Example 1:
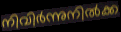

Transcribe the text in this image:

നിവിർന്നുനിൽക്ക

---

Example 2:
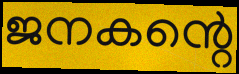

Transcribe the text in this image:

ജനകന്റെ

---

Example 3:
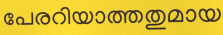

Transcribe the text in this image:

പേരറിയാത്തതുമായ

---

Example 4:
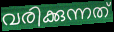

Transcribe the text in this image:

വരിക്കുന്നത്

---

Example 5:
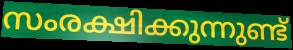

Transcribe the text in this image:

സംരക്ഷിക്കുന്നുണ്ട്